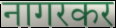
नागरकर